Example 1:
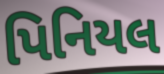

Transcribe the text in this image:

પિનિયલ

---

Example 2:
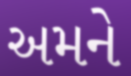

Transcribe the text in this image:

અમને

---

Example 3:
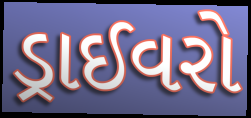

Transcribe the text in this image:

ડ્રાઈવરો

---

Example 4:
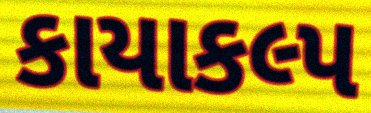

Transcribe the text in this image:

કાયાકલ્પ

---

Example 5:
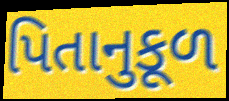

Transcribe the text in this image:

પિતાનુકૂળ